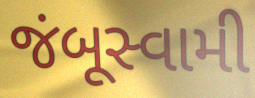
જંબૂસ્વામી